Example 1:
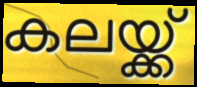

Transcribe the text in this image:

കലയ്ക്ക്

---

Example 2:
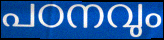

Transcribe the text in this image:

പഠനവും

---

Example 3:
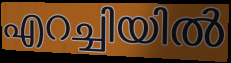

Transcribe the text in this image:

എറച്ചിയിൽ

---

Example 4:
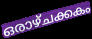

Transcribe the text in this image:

ഒരാഴ്ചക്കകം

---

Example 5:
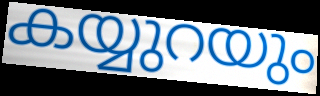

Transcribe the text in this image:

കയ്യുറയും